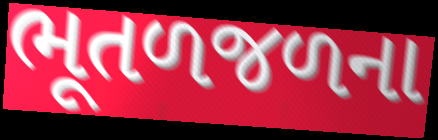
ભૂતળજળના